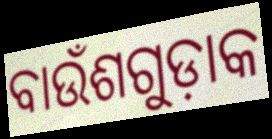
ବାଉଁଶଗୁଡ଼ାକ